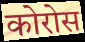
कोरोस